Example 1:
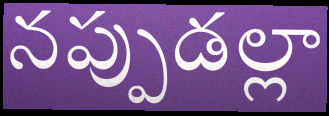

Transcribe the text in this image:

నప్పుడల్లా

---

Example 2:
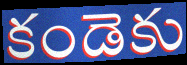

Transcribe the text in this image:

కండెకు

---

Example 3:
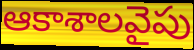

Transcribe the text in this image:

ఆకాశాలవైపు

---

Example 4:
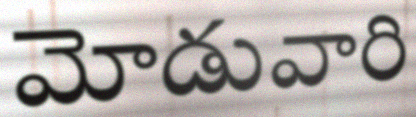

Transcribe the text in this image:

మోడువారి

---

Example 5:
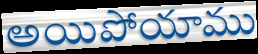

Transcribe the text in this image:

అయిపోయాము